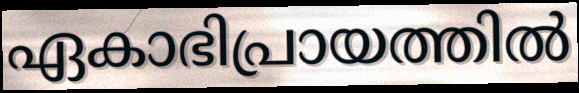
ഏകാഭിപ്രായത്തിൽ